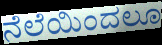
ನೆಲೆಯಿಂದಲೂ